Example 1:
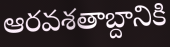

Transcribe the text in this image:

ఆరవశతాబ్దానికి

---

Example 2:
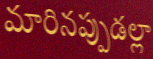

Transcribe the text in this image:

మారినప్పుడల్లా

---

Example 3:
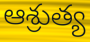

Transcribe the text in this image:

ఆశ్రుత్య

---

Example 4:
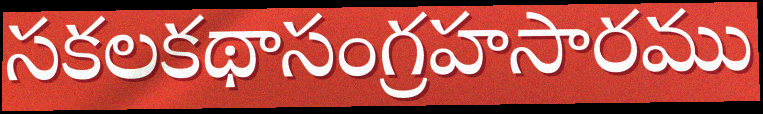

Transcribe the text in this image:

సకలకథాసంగ్రహసారము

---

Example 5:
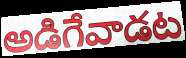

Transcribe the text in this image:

అడిగేవాడట